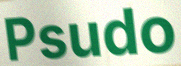
Psudo